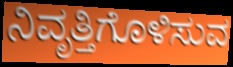
ನಿವೃತ್ತಿಗೊಳಿಸುವ